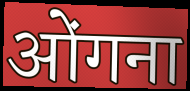
ओंगना